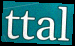
ttal